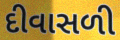
દીવાસળી